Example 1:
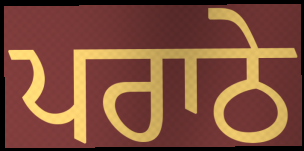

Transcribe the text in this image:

ਪਰਾਠੇ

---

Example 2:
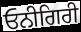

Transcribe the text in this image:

ਓਨੀਗਿਰੀ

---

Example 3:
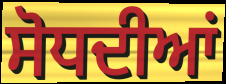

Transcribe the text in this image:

ਸੋਧਦੀਆਂ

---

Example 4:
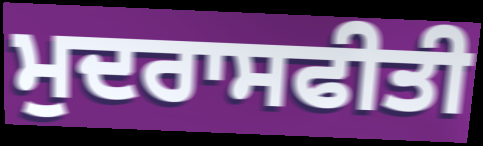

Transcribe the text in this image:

ਮੁਦਰਾਸਫੀਤੀ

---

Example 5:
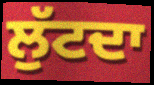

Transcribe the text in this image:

ਲੁੱਟਦਾ